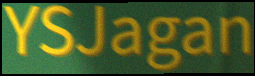
YSJagan